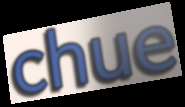
chue